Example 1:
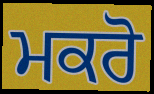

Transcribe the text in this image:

ਮਕਰੋ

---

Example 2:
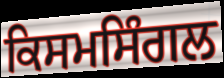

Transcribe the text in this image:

ਕਿਸਮਸਿੰਗਲ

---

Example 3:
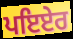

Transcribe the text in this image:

ਪਇਏਰ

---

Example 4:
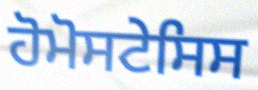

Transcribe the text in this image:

ਹੋਮੋਸਟੇਸਿਸ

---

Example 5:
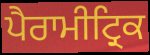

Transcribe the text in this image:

ਪੈਰਾਮੀਟ੍ਰਿਕ